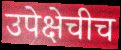
उपेक्षेचीच